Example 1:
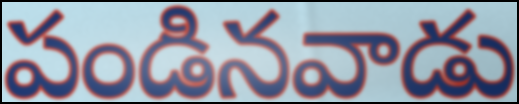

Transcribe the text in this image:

పండినవాడు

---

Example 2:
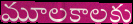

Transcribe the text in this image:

మూలకాలకు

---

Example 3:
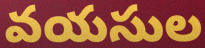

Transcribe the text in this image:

వయసుల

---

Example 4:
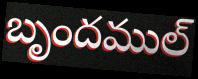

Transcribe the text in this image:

బృందముల్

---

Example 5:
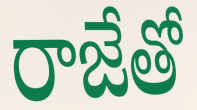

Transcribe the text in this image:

రాజేతో